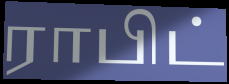
ராபிட்